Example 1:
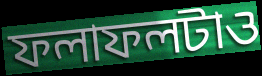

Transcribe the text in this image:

ফলাফলটাও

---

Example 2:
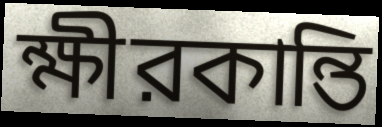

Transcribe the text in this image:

ক্ষীরকান্তি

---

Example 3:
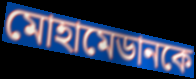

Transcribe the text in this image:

মোহামেডানকে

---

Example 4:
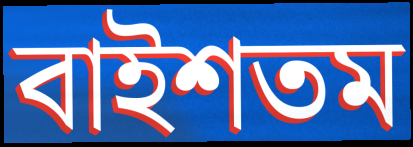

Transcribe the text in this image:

বাইশতম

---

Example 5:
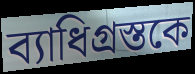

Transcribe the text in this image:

ব্যাধিগ্রস্তকে